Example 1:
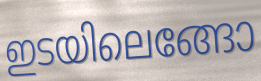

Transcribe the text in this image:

ഇടയിലെങ്ങോ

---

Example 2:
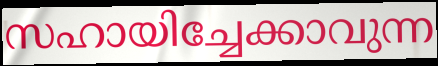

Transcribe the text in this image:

സഹായിച്ചേക്കാവുന്ന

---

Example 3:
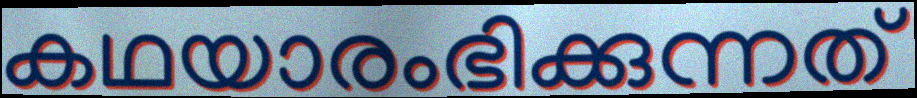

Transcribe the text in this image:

കഥയാരംഭിക്കുന്നത്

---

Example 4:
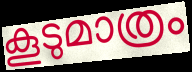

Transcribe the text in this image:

കൂടുമാത്രം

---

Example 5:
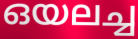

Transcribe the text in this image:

ഒയലച്ച